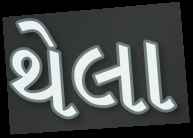
થેલા